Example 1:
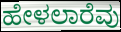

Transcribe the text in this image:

ಹೇಳಲಾರೆವು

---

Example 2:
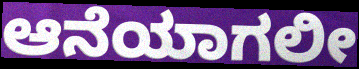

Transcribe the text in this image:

ಆನೆಯಾಗಲೀ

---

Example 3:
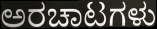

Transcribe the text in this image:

ಅರಚಾಟಗಳು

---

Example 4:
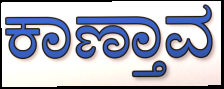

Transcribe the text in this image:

ಕಾಣ್ತಾವ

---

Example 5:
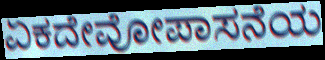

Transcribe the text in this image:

ಏಕದೇವೋಪಾಸನೆಯ